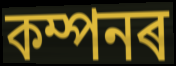
কম্পনৰ